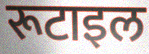
रूटाइल